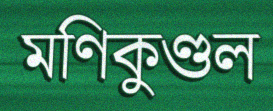
মণিকুণ্ডল